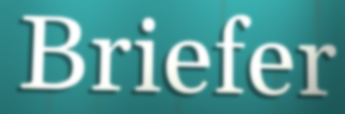
Briefer